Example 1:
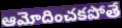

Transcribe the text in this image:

ఆమోదించకపోతే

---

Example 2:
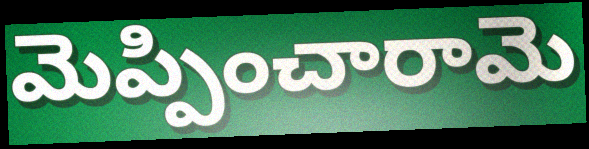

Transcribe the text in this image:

మెప్పించారామె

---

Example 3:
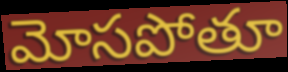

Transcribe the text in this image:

మోసపోతూ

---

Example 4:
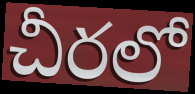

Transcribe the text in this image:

చీరలో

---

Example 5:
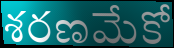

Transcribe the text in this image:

శరణమేకో